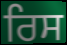
ਰਿਸ